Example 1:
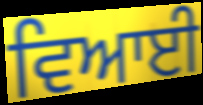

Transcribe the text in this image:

ਵਿਆਈ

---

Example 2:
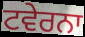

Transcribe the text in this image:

ਟਵੇਰਨਾ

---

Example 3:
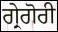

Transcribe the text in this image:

ਗ੍ਰੇਗੋਰੀ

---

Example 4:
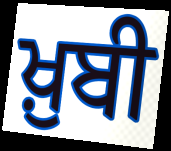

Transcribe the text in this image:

ਖ਼ੁਬੀ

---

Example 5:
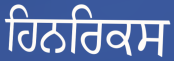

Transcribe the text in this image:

ਹਿਨਰਿਕਸ